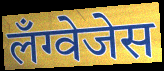
लँग्वेजेस